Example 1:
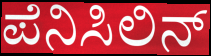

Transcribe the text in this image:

ಪೆನಿಸಿಲಿನ್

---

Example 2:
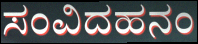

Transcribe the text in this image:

ಸಂವಿದಹನಂ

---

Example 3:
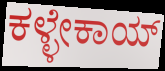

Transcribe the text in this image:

ಕಳ್ಳೇಕಾಯ್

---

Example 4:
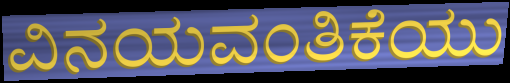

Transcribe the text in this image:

ವಿನಯವಂತಿಕೆಯು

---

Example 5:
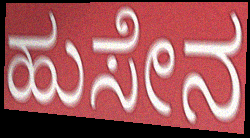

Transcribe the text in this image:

ಹುಸೇನ